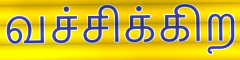
வச்சிக்கிற